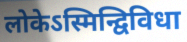
लोकेऽस्मिन्द्विविधा